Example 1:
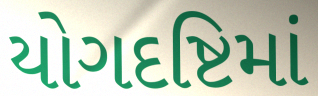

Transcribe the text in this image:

યોગદષ્ટિમાં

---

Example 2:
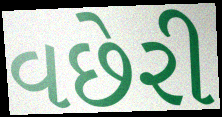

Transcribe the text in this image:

વછેરી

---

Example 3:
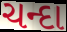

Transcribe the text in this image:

ચન્દા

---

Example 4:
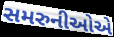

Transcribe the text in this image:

સમરુનીઓએ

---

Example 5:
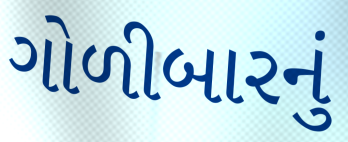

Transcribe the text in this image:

ગોળીબારનું